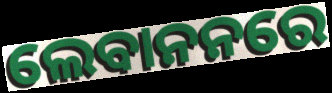
ଲେବାନନରେ